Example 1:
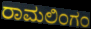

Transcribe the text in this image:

ರಾಮಲಿಂಗಂ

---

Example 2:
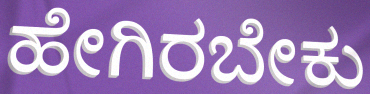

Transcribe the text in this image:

ಹೇಗಿರಬೇಕು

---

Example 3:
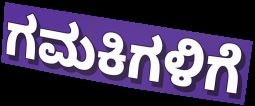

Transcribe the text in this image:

ಗಮಕಿಗಳಿಗೆ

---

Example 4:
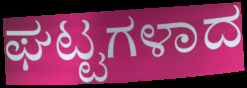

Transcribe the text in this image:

ಘಟ್ಟಗಳಾದ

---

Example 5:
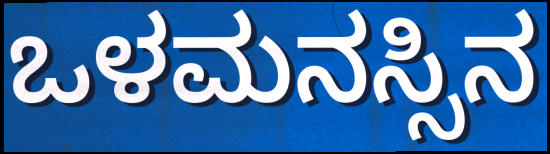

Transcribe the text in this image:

ಒಳಮನಸ್ಸಿನ